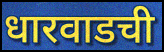
धारवाडची